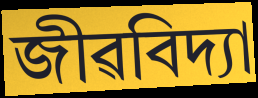
জীৱবিদ্যা